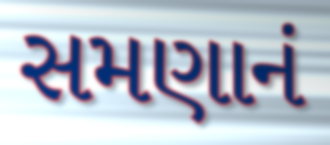
સમણાનં